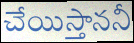
చేయిస్తాననీ